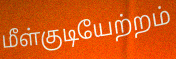
மீள்குடியேற்றம்